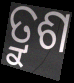
ତ୍ରୁଶ